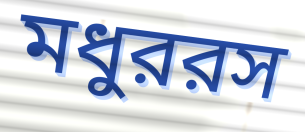
মধুররস